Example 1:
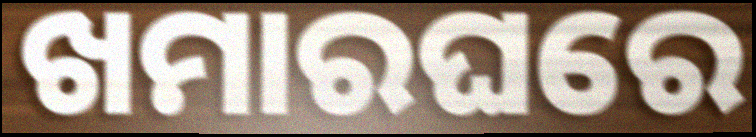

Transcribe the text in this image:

ଖମାରଘରେ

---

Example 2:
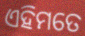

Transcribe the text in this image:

ଏହିମତେ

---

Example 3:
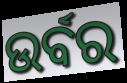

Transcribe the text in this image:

ଉର୍ବର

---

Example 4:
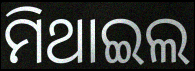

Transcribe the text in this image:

ମିଥାଇଲ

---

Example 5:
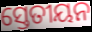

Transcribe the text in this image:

ସ୍ତେତୀୟନ